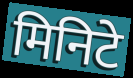
मिनिटे